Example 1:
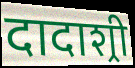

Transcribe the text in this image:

दादाश्री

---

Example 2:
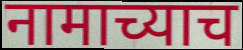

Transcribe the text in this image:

नामाच्याच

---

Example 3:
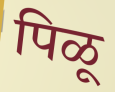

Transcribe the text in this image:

पिळू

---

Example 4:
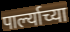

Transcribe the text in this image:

पार्ल्याच्या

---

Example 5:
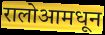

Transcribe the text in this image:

रालोआमधून